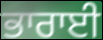
ਭਾਰਾਈ